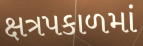
ક્ષત્રપકાળમાં